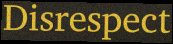
Disrespect